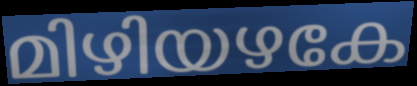
മിഴിയഴകേ